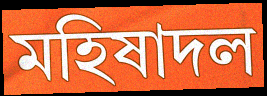
মহিষাদল